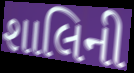
શાલિની